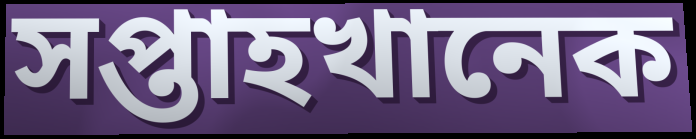
সপ্তাহখানেক